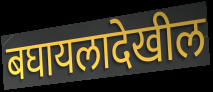
बघायलादेखील